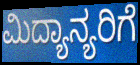
ಮಿದ್ಯಾನ್ಯರಿಗೆ